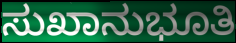
ಸುಖಾನುಭೂತಿ